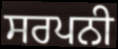
ਸਰਪਨੀ